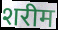
शरीम